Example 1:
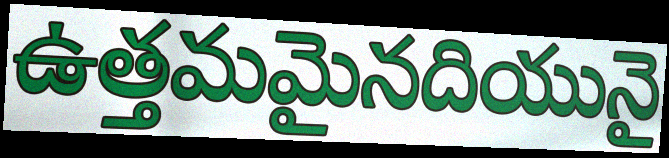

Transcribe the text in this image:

ఉత్తమమైనదియునై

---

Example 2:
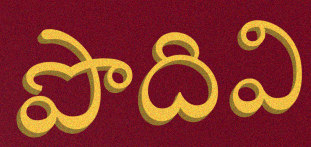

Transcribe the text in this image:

పొదివి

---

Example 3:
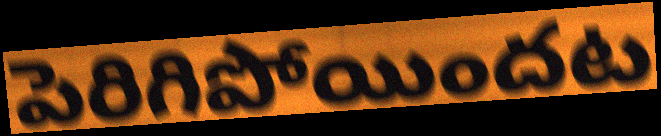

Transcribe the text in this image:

పెరిగిపోయిందట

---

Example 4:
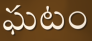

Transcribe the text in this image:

ఘటం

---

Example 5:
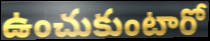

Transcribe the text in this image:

ఉంచుకుంటారో